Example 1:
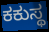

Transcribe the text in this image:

ಕಕುಸ್ಥ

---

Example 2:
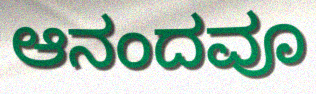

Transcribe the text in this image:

ಆನಂದವೂ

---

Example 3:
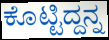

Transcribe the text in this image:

ಕೊಟ್ಟಿದ್ದನ್ನ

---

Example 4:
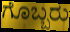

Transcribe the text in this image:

ಗೊಬ್ಬರು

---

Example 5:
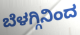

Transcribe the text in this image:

ಬೆಳಗ್ಗಿನಿಂದ